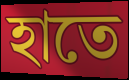
হাতে